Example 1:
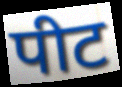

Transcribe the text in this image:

पीट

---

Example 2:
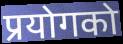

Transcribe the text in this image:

प्रयोगको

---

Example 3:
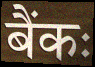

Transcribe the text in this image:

बैंकः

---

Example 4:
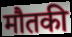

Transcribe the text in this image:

मौतकी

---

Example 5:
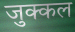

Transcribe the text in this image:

जुक्कल